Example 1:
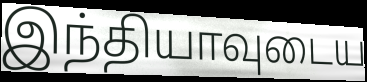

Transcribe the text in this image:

இந்தியாவுடைய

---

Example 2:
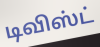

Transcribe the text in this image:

டிவிஸ்ட்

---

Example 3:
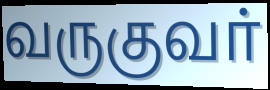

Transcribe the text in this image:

வருகுவர்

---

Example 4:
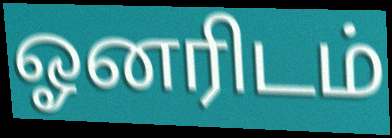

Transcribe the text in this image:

ஓனரிடம்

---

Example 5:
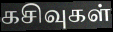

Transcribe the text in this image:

கசிவுகள்